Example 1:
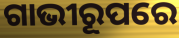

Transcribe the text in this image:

ଗାଭୀରୂପରେ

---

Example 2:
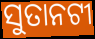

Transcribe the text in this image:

ସୁତାନଟୀ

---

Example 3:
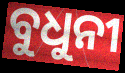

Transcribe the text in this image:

ବୁଧୁନୀ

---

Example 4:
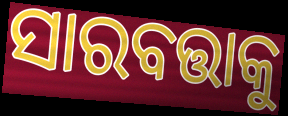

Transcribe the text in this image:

ସାରବତ୍ତାକୁ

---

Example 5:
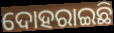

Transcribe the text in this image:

ଦୋହରାଇଛି